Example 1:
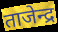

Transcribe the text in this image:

ताजेन्द्र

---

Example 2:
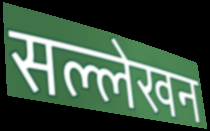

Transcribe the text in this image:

सल्लेखन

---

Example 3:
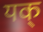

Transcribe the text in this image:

यक्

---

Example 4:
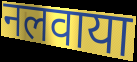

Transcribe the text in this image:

नलवाया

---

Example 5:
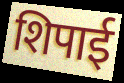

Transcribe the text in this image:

शिपाई